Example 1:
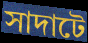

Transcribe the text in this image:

সাদাটে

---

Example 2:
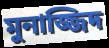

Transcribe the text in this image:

মুনাজ্জিদ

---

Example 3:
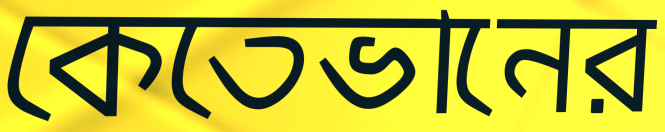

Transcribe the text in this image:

কেতেভানের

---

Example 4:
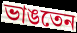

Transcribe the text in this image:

ভাঙতেন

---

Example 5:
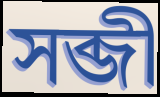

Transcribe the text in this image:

সব্জী